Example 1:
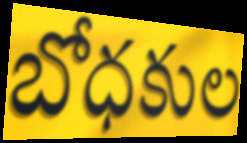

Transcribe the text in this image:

బోధకుల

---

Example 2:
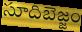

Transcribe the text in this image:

సూదిబెజ్జం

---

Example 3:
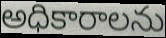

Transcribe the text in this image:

అధికారాలను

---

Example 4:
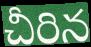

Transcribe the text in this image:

చీరిన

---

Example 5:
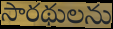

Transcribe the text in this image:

సారథులను